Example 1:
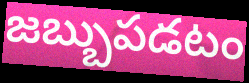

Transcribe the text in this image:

జబ్బుపడటం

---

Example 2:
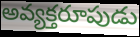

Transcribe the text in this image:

అవ్యక్తరూపుడు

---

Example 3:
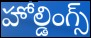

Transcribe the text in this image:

హోల్డింగ్స్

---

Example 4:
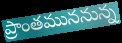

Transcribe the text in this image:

ప్రాంతముననున్న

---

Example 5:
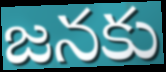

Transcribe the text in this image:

జనకు